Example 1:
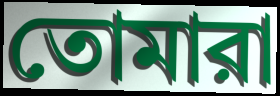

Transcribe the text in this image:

তোমারা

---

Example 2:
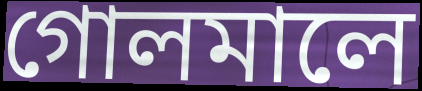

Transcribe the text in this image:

গোলমালে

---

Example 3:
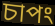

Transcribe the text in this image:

চাপং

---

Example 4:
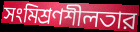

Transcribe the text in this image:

সংমিশ্রণশীলতার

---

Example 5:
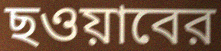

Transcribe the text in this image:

ছওয়াবের